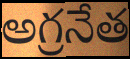
అగ్రనేత